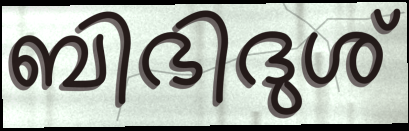
ബിഭിദുശ്